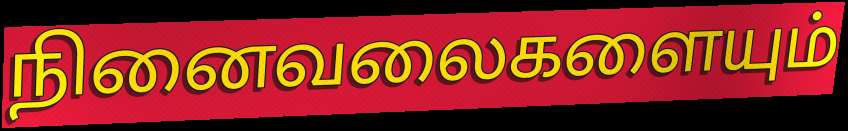
நினைவலைகளையும்